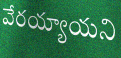
వేరయ్యాయని